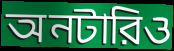
অনটারিও